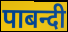
पाबन्दी